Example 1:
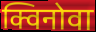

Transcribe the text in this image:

क्विनोवा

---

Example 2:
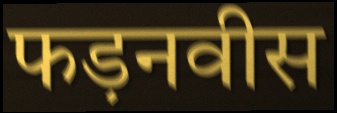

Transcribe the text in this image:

फड़नवीस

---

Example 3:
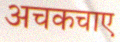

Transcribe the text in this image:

अचकचाए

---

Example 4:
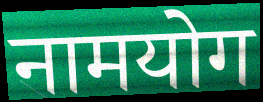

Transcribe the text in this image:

नामयोग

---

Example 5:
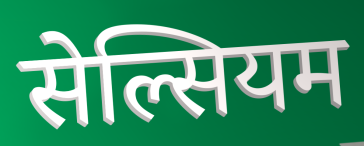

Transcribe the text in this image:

सेल्सियम